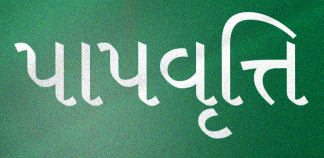
પાપવૃત્તિ